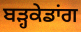
ਬੜ੍ਹਕੇਡਾਂਗ